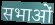
सभाओं